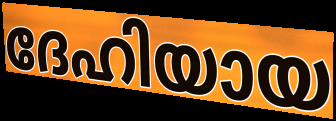
ദേഹിയായ